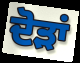
ਦੋੜਾਂ